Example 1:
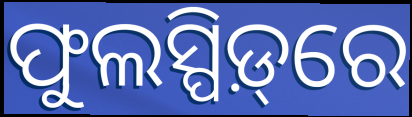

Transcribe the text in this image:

ଫୁଲସ୍ପିଡ଼୍‌ରେ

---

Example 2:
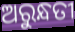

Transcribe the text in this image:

ଅରୁନ୍ଧତୀ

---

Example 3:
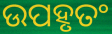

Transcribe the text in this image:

ଉପହୃତଂ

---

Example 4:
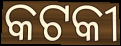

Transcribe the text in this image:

କଟକୀ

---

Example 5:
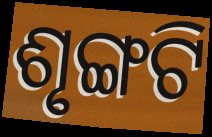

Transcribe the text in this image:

ଶୃଙ୍ଗଟି